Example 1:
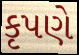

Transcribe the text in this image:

કૃપણે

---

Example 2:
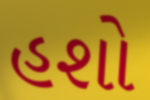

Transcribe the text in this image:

હશો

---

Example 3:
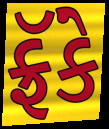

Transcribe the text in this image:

ફ્રૅંકે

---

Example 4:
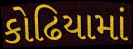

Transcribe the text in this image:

કોઢિયામાં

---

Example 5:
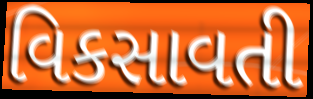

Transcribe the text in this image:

વિકસાવતી